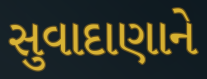
સુવાદાણાને